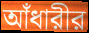
আঁধারীর